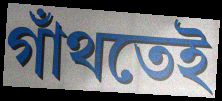
গাঁথতেই